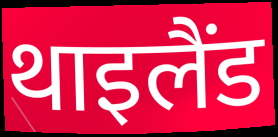
थाइलैंड